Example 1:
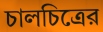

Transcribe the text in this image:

চালচিত্রের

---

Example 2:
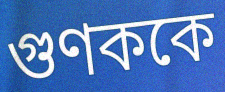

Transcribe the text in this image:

গুণককে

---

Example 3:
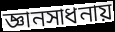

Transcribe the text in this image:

জ্ঞানসাধনায়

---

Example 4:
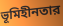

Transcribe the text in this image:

ভূমিহীনতার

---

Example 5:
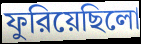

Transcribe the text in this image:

ফুরিয়েছিলো